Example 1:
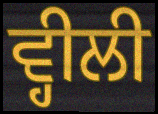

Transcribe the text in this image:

ਵ੍ਹੀਲੀ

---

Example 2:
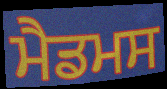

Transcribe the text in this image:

ਮੈਡਮਸ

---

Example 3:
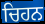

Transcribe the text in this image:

ਚਿਹਨ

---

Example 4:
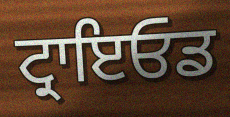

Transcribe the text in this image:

ਟ੍ਰਾਇਓਡ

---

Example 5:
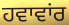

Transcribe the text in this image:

ਹਵਾਵਾਂਰ